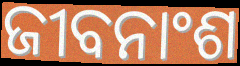
ଜୀବନାଂଶ